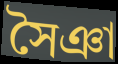
সৈঞা